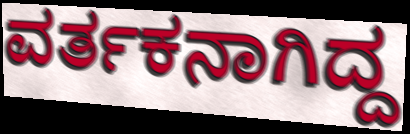
ವರ್ತಕನಾಗಿದ್ದ